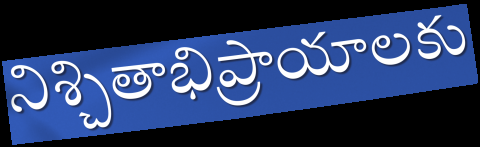
నిశ్చితాభిప్రాయాలకు